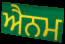
ਐਨਮ